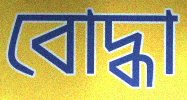
বোদ্ধা